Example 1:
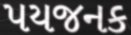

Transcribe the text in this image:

પયજનક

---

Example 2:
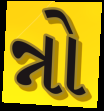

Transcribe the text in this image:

ન્નો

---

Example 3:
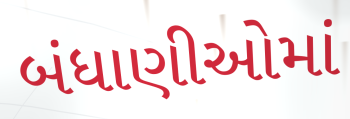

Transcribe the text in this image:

બંધાણીઓમાં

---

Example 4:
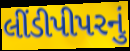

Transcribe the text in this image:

લીંડીપીપરનું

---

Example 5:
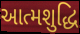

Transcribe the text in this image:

આત્મશુદ્ધિ